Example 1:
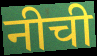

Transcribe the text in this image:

नीची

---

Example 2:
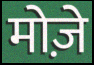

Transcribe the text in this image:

मोज़े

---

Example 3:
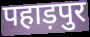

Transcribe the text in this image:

पहाड़पुर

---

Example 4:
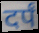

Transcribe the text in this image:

दर्पं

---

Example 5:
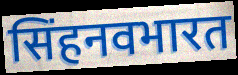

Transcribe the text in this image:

सिंहनवभारत